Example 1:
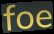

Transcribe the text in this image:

foe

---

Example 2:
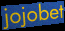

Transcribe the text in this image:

jojobet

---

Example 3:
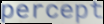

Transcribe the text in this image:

percept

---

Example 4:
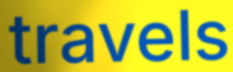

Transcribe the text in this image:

travels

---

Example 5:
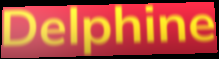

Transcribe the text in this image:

Delphine